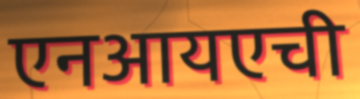
एनआयएची